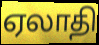
ஏலாதி